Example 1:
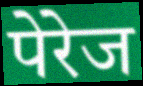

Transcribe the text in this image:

पेरेज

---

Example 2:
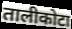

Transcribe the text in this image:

तालीकोटा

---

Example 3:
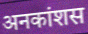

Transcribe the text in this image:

अनकांशस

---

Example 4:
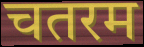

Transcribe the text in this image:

चतरम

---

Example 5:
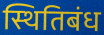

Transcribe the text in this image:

स्थितिबंध